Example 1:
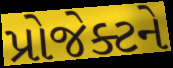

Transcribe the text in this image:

પ્રોજેક્ટને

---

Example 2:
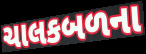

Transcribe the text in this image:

ચાલકબળના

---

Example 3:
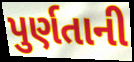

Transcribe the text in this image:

પુર્ણતાની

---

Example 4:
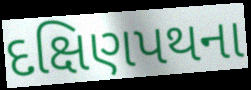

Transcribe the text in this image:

દક્ષિણપથના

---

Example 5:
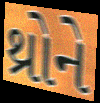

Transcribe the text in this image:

થ્રોને